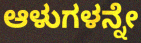
ಆಳುಗಳನ್ನೇ